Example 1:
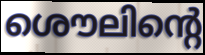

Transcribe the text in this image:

ശൌലിന്റെ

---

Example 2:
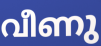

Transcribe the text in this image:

വീണു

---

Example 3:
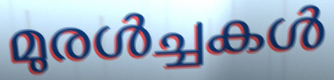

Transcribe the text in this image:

മുരൾച്ചകൾ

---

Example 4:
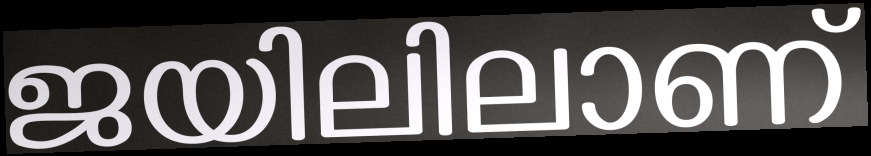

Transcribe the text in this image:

ജയിലിലാണ്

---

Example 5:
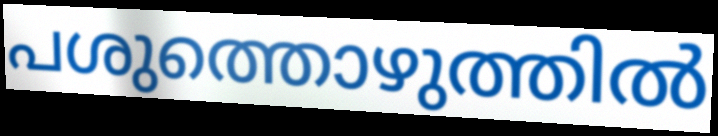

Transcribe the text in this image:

പശുത്തൊഴുത്തിൽ